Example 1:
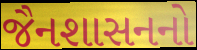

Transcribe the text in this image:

જૈનશાસનનો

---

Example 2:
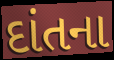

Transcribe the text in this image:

દાંતના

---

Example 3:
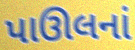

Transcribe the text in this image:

પાઊલનાં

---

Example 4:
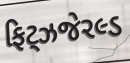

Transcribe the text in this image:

ફિટ્ઝજેરલ્ડ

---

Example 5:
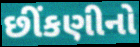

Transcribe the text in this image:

છીંકણીનો